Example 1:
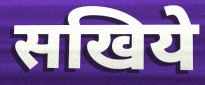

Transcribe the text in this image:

सखिये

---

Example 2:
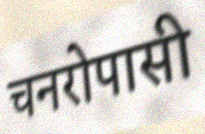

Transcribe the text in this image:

चनरोपासी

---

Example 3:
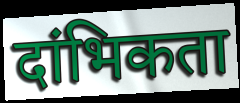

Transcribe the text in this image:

दांभिकता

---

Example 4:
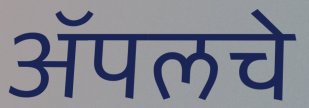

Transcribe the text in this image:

ॲपलचे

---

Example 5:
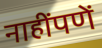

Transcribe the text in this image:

नाहींपणें